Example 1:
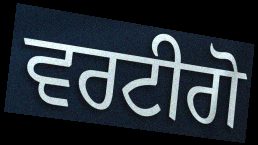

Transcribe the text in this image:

ਵਰਟੀਗੋ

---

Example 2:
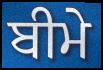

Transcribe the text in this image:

ਬੀਮੇ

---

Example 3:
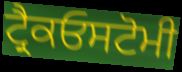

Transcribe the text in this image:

ਟ੍ਰੈਕਓਸਟੋਮੀ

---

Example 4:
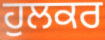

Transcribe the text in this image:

ਹੁਲਕਰ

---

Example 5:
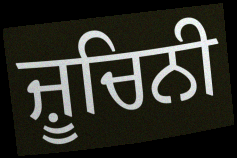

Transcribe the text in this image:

ਜ਼ੂਚਿਨੀ